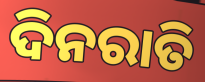
ଦିନରାତି